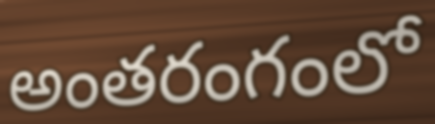
అంతరంగంలో